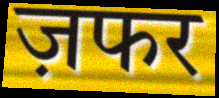
ज़फर